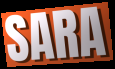
SARA